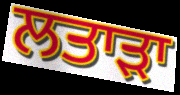
ਲਤਾੜਾ